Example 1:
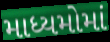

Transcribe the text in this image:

માધ્યમોમાં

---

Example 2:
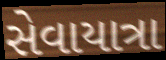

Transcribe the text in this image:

સેવાયાત્રા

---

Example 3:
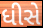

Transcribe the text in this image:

ધીસે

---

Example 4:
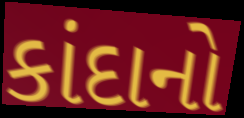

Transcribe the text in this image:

કાંદાનો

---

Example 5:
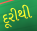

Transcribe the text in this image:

દૂરીથી